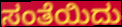
ಸಂತೆಯಿದು